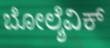
ಬೋಲ್ಶೆವಿಕ್